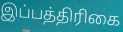
இப்பத்திரிகை